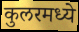
कुलरमध्ये